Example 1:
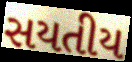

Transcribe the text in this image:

સયતીય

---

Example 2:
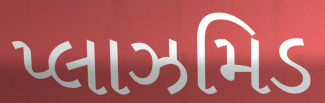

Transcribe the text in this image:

પ્લાઝમિડ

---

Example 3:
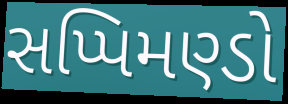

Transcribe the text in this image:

સપ્પિમણ્ડો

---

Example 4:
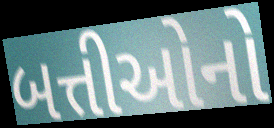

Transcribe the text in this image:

બત્તીઓનો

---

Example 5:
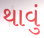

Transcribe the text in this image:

થાવું